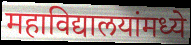
महाविद्यालयांमध्ये